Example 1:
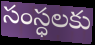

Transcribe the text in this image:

సంస్ధలకు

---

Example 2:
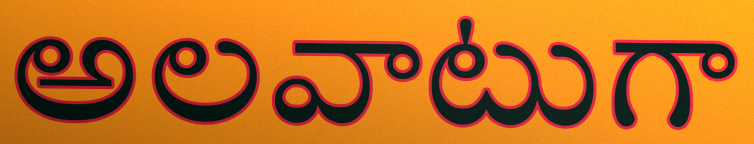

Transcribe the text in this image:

అలవాటుగా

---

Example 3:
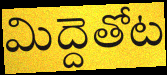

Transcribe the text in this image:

మిద్దెతోట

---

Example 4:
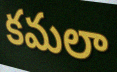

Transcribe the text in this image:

కమలా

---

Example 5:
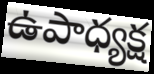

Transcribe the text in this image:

ఉపాధ్యక్ష